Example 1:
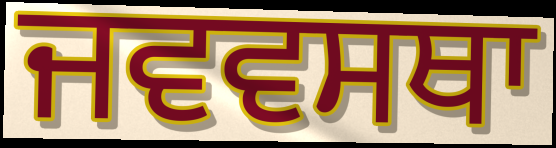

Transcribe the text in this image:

ਜਵਵਸਥਾ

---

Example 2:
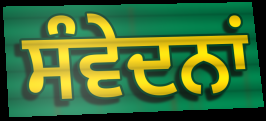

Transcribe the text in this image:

ਸੰਵੇਦਨਾਂ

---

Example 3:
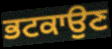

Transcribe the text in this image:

ਭਟਕਾਉਣ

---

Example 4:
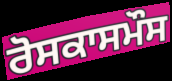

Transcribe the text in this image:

ਰੋਸਕਾਸਮੌਸ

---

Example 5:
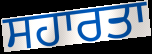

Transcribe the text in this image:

ਸਹਾਰਤਾ